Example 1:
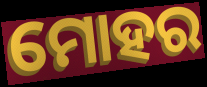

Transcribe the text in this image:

ମୋହର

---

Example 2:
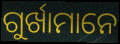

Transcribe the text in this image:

ଗୁର୍ଖାମାନେ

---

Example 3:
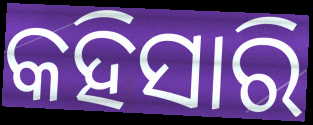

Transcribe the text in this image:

କହିସାରି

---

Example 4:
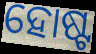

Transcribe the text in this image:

ହୋଷ୍ଟ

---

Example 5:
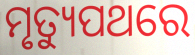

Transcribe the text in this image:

ମୃତ୍ୟୁପଥରେ